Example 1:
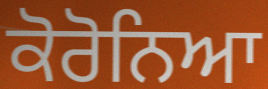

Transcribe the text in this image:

ਕੋਰੋਨਿਆ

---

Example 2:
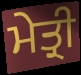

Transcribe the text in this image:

ਮੇਤ੍ਰੀ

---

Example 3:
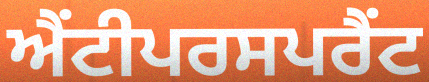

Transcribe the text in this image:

ਐਂਟੀਪਰਸਪਰੈਂਟ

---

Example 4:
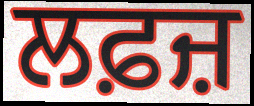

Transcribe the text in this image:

ਲਫ਼ਜ਼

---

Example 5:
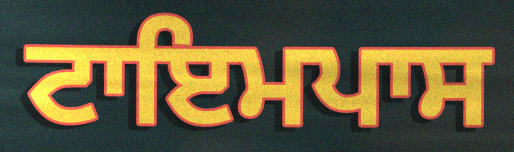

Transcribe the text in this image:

ਟਾਇਮਪਾਸ